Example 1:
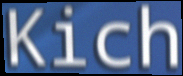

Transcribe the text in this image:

Kich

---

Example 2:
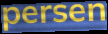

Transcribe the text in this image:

persen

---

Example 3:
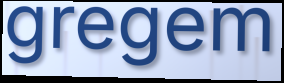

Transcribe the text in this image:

gregem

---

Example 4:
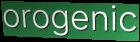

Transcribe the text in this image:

orogenic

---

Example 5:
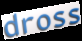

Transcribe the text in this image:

dross